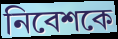
নিবেশকে